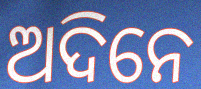
ଅଦିନେ